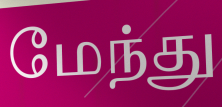
மேந்து